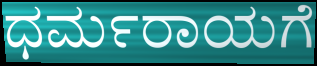
ಧರ್ಮರಾಯಗೆ